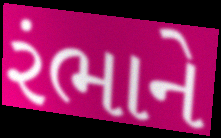
રંભાને